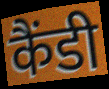
कैंडी